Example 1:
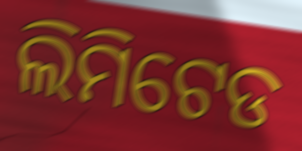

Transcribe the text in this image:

ଲିମିଟେଡ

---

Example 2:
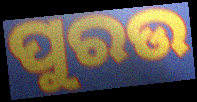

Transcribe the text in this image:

ପୁରଉ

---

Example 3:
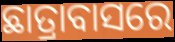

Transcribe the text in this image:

ଛାତ୍ରାବାସରେ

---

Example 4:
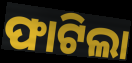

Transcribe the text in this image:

ଫାଟିଲା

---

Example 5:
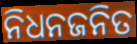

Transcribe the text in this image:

ନିଧନଜନିତ